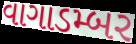
વાગાડમ્બર